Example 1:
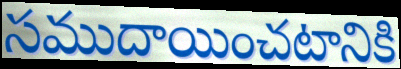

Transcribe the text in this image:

సముదాయించటానికి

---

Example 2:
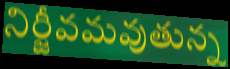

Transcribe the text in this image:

నిర్జీవమవుతున్న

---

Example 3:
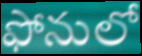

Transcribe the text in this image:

ఫోనులో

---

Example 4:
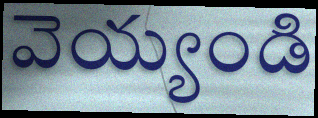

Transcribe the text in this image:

వెయ్యండి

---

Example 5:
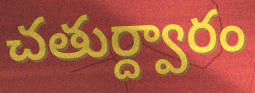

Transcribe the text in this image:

చతుర్ద్వారం